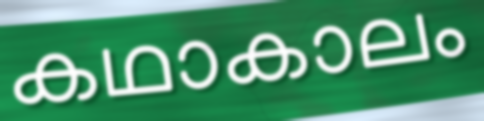
കഥാകാലം